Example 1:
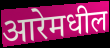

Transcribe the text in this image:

आरेमधील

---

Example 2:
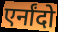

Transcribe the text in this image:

एर्नांदो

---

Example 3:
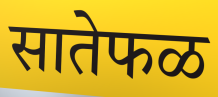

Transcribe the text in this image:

सातेफळ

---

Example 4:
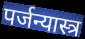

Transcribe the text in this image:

पर्जन्यास्त्र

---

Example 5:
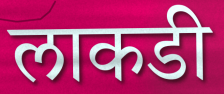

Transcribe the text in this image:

लाकडी